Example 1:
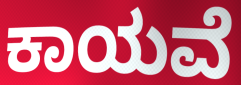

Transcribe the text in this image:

ಕಾಯವೆ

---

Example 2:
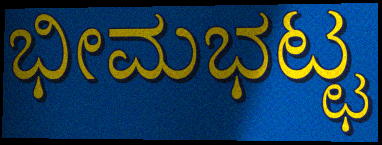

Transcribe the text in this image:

ಭೀಮಭಟ್ಟ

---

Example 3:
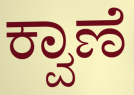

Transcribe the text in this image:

ಕ್ವಾಣೆ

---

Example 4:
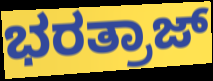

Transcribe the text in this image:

ಭರತ್ರಾಜ್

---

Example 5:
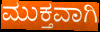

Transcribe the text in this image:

ಮುಕ್ತವಾಗಿ